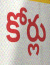
కోర్లు